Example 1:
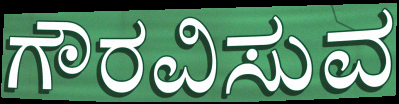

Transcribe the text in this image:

ಗೌರವಿಸುವ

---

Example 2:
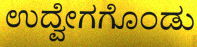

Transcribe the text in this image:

ಉದ್ವೇಗಗೊಂಡು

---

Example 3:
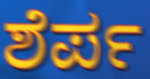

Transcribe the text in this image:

ಶೆರ್ಪ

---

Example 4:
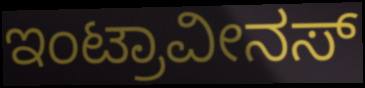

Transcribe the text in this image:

ಇಂಟ್ರಾವೀನಸ್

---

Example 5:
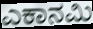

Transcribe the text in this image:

ಎಕಾನಮಿ